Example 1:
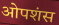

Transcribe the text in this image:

ओपशंस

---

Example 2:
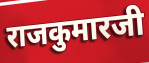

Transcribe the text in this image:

राजकुमारजी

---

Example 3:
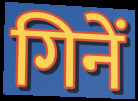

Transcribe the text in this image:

गिनें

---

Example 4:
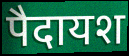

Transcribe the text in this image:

पैदायश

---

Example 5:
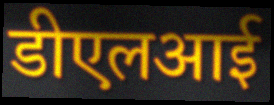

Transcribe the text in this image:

डीएलआई